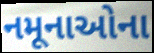
નમૂનાઓના